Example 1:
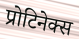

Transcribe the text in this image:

प्रोटिनेक्स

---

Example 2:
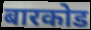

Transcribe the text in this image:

बारकोड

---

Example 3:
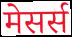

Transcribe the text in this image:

मेसर्स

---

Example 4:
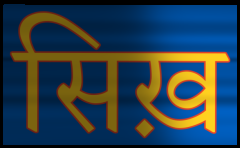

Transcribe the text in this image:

सिख़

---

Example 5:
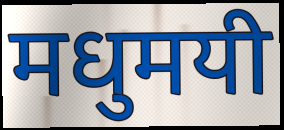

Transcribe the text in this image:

मधुमयी